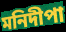
মনিদীপা